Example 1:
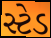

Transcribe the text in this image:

સ્ટેડ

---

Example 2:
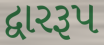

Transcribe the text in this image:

દ્વારરૂપ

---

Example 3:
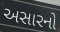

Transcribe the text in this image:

અસારનો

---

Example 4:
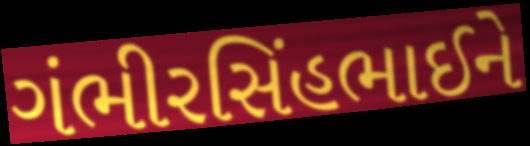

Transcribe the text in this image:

ગંભીરસિંહભાઈને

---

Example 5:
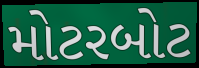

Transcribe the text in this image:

મોટરબોટ